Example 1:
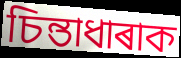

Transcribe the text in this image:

চিন্তাধাৰাক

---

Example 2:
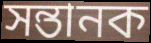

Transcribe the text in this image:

সন্তানক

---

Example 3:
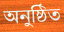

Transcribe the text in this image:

অনুষ্ঠিত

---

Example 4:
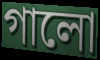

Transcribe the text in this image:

গালো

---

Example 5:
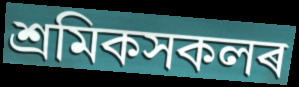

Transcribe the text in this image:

শ্ৰমিকসকলৰ